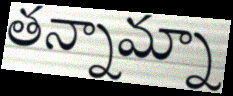
తన్నామ్నా